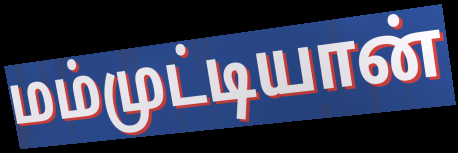
மம்முட்டியான்